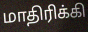
மாதிரிக்கி